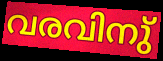
വരവിനു്